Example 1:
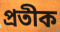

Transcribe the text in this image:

প্ৰতীক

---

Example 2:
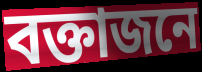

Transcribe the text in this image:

বক্তাজনে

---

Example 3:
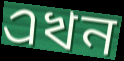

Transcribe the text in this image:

এখন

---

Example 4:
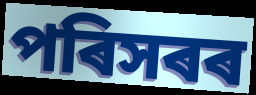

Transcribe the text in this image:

পৰিসৰৰ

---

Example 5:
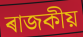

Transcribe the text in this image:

ৰাজকীয়